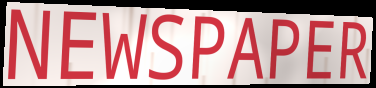
NEWSPAPER